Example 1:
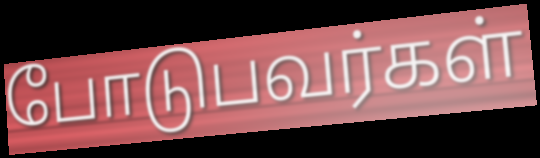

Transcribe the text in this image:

போடுபவர்கள்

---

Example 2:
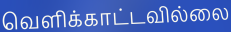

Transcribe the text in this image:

வெளிக்காட்டவில்லை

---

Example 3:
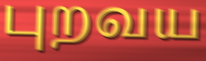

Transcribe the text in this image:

புறவய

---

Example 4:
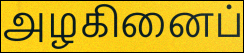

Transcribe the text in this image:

அழகினைப்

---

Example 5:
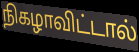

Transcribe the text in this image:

நிகழாவிட்டால்